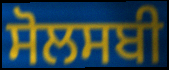
ਸੋਲਸਬੀ